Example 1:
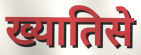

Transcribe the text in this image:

ख्यातिसे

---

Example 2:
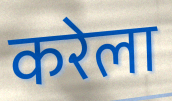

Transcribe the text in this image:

करेला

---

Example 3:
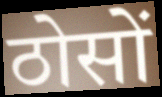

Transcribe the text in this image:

ठोसों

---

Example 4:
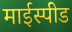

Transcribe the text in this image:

माईस्पीड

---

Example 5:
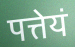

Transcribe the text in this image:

पत्तेयं